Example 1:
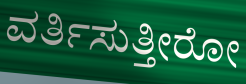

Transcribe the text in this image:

ವರ್ತಿಸುತ್ತೀರೋ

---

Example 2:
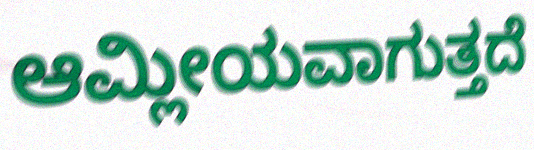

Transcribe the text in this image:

ಆಮ್ಲೀಯವಾಗುತ್ತದೆ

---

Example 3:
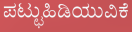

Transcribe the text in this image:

ಪಟ್ಟುಹಿಡಿಯುವಿಕೆ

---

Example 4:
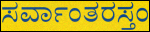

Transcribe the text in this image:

ಸರ್ವಾಂತರಸ್ತಂ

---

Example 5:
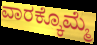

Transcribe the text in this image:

ವಾರಕ್ಕೊಮ್ಮೆ